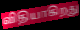
விதியாகிறது